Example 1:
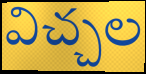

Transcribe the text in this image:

విచ్చల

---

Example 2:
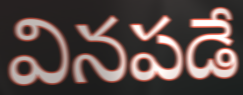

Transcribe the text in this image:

వినపడే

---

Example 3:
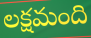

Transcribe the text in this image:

లక్షమంది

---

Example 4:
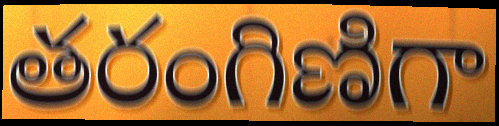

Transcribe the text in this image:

తరంగిణిగా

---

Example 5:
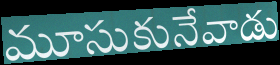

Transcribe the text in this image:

మూసుకునేవాడు